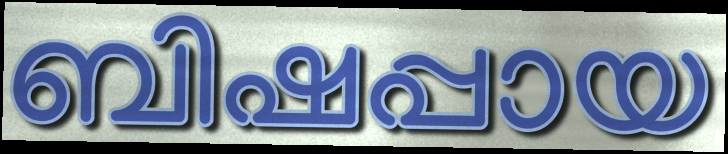
ബിഷപ്പായ